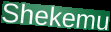
Shekemu